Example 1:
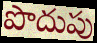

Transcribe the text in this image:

పొదుపు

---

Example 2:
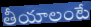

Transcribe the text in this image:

తీయాలంటే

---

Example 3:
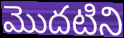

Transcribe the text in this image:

మొదటిని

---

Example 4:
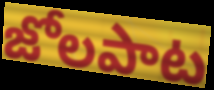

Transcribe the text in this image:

జోలపాట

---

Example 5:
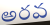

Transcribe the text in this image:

అరవ